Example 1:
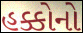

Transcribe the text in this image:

હક્કોનો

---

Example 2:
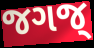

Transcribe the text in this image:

જગજ્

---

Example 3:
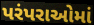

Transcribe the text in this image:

પરંપરાઓમાં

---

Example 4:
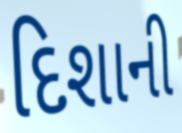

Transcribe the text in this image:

દિશાની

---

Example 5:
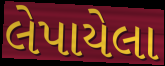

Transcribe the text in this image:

લેપાયેલા